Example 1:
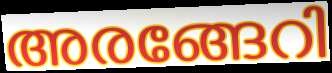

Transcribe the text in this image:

അരങ്ങേറി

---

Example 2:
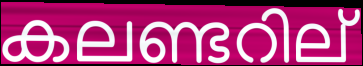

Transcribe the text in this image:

കലണ്ടറില്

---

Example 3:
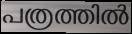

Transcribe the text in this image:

പത്രത്തിൽ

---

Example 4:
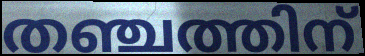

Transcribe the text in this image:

തഞ്ചത്തിന്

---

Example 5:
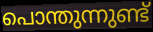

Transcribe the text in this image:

പൊന്തുന്നുണ്ട്